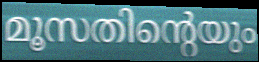
മൂസതിന്റെയും